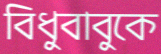
বিধুবাবুকে